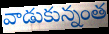
వాడుకున్నంత